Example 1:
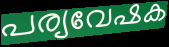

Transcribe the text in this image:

പര്യവേഷക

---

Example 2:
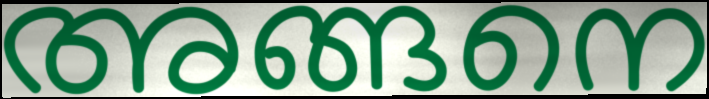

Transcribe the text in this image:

അങ്ങനെ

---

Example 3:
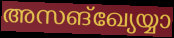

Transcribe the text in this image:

അസങ്ഖ്യേയ്യാ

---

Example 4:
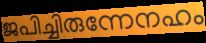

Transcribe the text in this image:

ജപിച്ചിരുന്നേനഹം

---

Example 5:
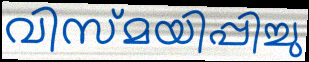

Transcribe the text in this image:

വിസ്മയിപ്പിച്ചു